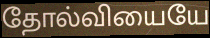
தோல்வியையே